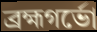
ব্রহ্মগর্ভো